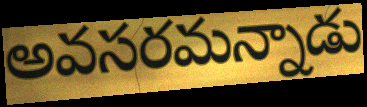
అవసరమన్నాడు